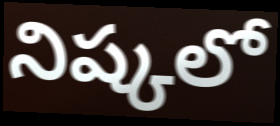
నిష్కలో